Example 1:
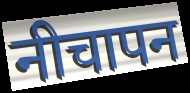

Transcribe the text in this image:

नीचापन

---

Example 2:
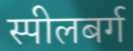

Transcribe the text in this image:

स्पीलबर्ग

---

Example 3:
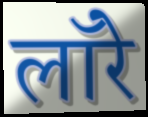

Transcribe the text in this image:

लॉरे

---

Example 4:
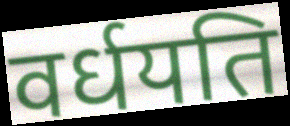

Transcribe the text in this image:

वर्धयति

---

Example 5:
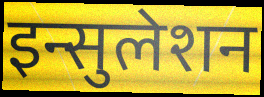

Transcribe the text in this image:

इन्सुलेशन